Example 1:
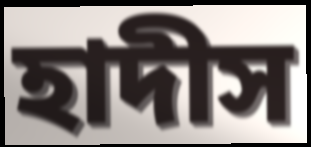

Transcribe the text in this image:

হাদীস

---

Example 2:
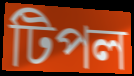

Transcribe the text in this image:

টিপল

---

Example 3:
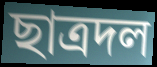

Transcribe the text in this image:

ছাত্রদল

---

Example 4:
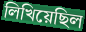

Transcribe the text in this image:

লিখিয়েছিল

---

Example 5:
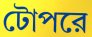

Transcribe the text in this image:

টোপরে